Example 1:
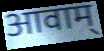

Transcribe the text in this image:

आवाम्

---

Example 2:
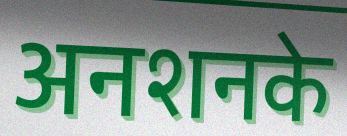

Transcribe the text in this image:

अनशनके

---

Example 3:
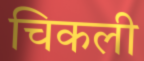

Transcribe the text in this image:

चिकली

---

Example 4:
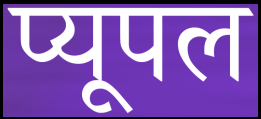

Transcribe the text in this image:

प्यूपल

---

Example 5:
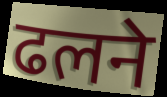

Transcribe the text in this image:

ढलने